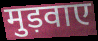
मुड़वाए